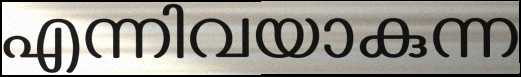
എന്നിവയാകുന്ന